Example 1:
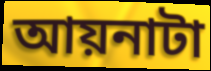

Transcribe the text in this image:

আয়নাটা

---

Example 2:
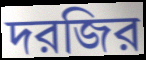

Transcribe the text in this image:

দরজির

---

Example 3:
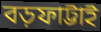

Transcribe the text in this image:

বড়ফাট্টাই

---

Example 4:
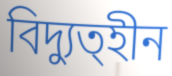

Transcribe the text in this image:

বিদ্যুত্হীন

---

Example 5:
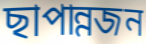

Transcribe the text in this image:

ছাপান্নজন